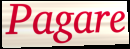
Pagare